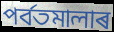
পৰ্বতমালাৰ